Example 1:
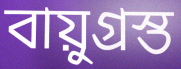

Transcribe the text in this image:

বায়ুগ্রস্ত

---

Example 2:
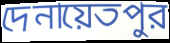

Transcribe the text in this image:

দেনায়েতপুর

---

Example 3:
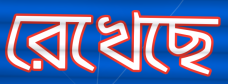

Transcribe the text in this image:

রেখেছে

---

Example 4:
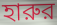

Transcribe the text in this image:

হারুর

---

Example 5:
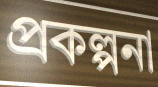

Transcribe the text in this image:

প্রকল্পনা